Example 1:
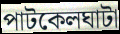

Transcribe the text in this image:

পাটকেলঘাটা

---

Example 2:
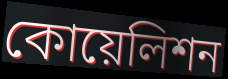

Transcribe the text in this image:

কোয়েলিশন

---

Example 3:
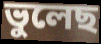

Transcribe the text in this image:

ভুলেছ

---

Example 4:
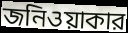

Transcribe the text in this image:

জনিওয়াকার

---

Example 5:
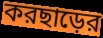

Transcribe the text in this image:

করছাড়ের